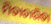
ମିତାଚାରିତା